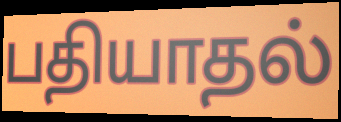
பதியாதல்